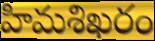
హిమశిఖరం